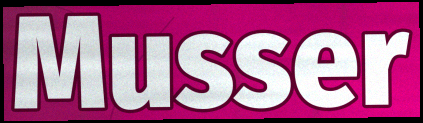
Musser